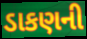
ડાકણની